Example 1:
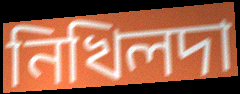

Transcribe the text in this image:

নিখিলদা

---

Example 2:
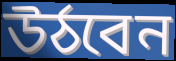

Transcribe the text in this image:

উঠবেন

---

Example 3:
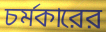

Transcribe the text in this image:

চর্মকারের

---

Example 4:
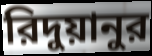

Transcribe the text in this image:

রিদুয়ানুর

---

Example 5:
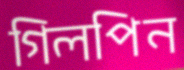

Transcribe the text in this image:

গিলপিন